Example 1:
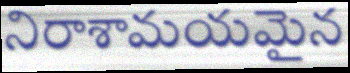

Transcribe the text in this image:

నిరాశామయమైన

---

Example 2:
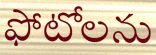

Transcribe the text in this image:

ఫోటోలను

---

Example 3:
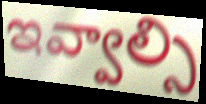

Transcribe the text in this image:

ఇవ్వాల్సి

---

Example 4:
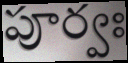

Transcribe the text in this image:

పూర్వః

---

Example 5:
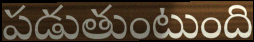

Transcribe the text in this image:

పడుతుంటుంది